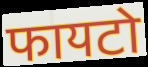
फायटो